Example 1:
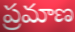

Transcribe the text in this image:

ప్రమాణ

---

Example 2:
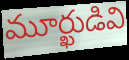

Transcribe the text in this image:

మూర్ఖుడివి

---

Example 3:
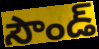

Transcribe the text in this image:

సౌండ్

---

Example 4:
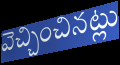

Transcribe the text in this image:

వెచ్చించినట్లు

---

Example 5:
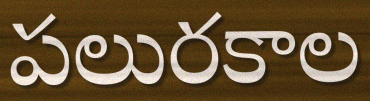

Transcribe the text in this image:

పలురకాల